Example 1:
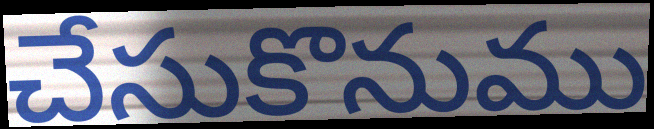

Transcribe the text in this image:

చేసుకొనుము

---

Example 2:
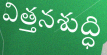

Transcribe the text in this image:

విత్తనశుద్ధి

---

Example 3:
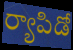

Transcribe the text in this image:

ర్యాపిడో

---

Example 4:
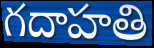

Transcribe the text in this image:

గదాహతి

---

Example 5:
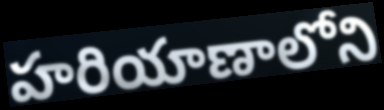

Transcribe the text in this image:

హరియాణాలోని